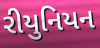
રીયુનિયન